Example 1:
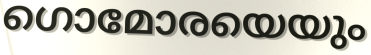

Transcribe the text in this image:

ഗൊമോരയെയും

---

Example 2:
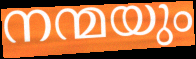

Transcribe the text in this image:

നന്മയും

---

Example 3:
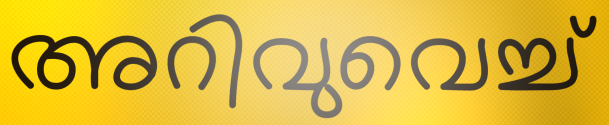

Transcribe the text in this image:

അറിവുവെച്ച്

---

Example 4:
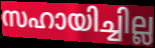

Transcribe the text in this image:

സഹായിച്ചില്ല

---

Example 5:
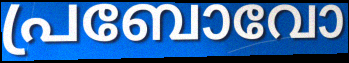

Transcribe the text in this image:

പ്രബോവോ